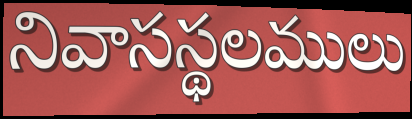
నివాసస్థలములు